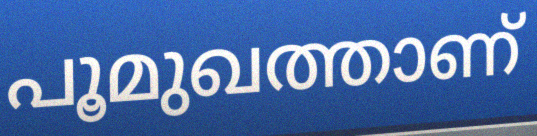
പൂമുഖത്താണ്